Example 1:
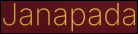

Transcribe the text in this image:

Janapada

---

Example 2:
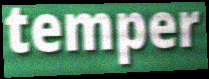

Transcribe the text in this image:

temper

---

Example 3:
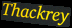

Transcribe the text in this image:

Thackrey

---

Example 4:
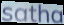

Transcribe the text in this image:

satha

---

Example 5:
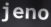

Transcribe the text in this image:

jeno